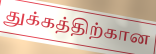
துக்கத்திற்கான